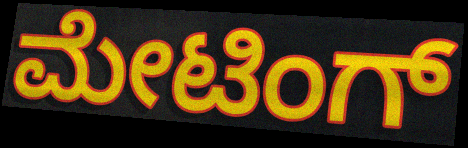
ಮೇಟಿಂಗ್